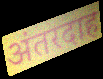
अंतरदाह